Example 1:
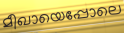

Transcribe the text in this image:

മീഖായെപ്പോലെ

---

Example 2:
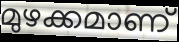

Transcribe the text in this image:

മുഴക്കമാണ്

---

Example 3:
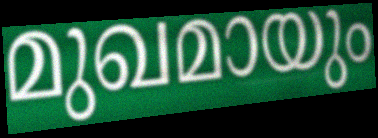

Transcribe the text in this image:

മുഖമായും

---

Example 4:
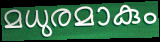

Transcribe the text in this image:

മധുരമാകും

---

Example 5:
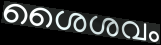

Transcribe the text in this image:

ശൈശവം